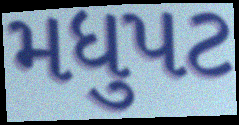
મધુપટ